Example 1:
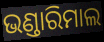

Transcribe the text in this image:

ଭଣ୍ଡାରିମାଲ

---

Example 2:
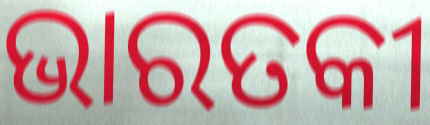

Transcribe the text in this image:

ଭାରତକୀ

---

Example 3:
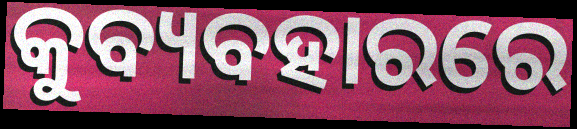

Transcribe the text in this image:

କୁବ୍ୟବହାରରେ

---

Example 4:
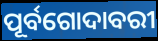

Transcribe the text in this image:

ପୂର୍ବଗୋଦାବରୀ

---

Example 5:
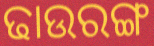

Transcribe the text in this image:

ଢାଉରଙ୍ଗ